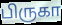
பிருகா